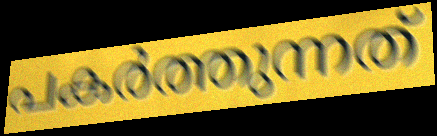
പകർത്തുന്നത്